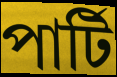
পার্টি